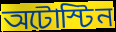
অটোস্টিন